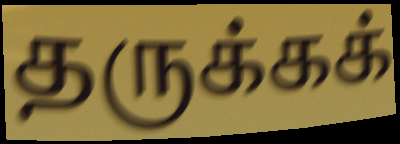
தருக்கக்